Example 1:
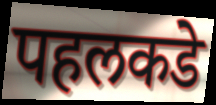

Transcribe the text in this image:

पहलकडे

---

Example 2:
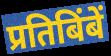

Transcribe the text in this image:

प्रतिबिंबें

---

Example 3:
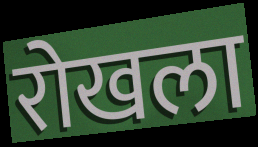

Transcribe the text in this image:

रोखला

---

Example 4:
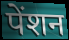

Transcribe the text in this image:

पेंशन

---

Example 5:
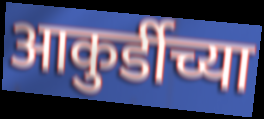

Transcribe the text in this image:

आकुर्डीच्या